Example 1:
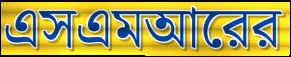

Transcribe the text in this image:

এসএমআরের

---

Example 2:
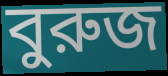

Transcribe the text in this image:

বুরুজ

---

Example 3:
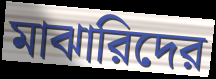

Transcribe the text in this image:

মাঝারিদের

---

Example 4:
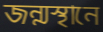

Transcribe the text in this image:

জন্মস্থানে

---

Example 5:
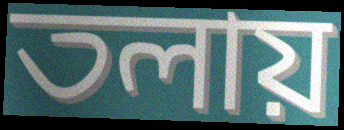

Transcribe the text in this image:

তলায়